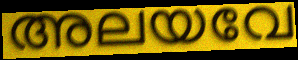
അലയവേ